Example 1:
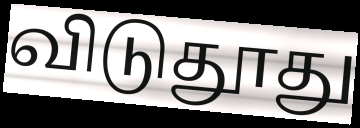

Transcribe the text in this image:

விடுதூது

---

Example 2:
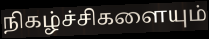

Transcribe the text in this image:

நிகழ்ச்சிகளையும்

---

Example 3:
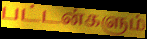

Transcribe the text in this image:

பட்டன்களும்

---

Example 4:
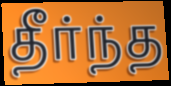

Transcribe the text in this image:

தீர்ந்த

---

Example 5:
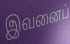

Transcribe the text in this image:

இவனைப்